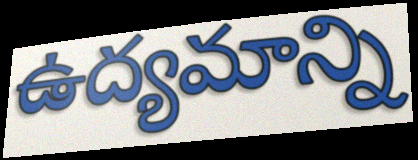
ఉద్యమాన్ని